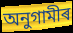
অনুগামীৰ